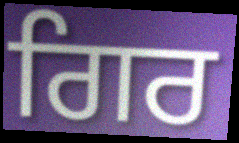
ਗਿਰ